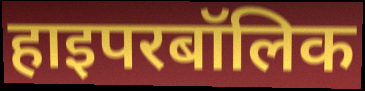
हाइपरबॉलिक